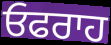
ਓਫਰਾਹ